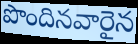
పొందినవారైన